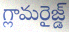
గ్లామరైజ్డ్